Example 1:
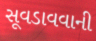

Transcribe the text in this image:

સૂવડાવવાની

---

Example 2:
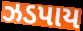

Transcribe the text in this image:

ઝડપાય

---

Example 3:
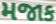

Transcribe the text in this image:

મજાક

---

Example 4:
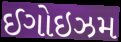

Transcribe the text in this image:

ઈગોઇઝમ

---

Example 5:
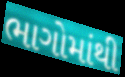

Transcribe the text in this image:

ભાગોમાંથી